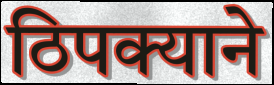
ठिपक्याने